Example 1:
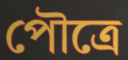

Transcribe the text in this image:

পৌত্রে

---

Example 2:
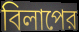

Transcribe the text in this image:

বিলাপের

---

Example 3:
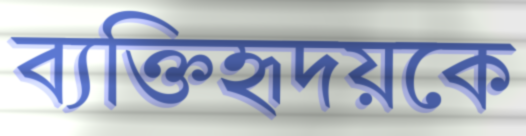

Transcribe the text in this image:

ব্যক্তিহৃদয়কে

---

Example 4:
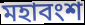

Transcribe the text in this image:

মহাবংশ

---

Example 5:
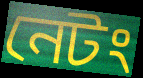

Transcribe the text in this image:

নেটং